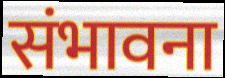
संभावना